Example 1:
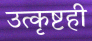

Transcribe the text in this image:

उत्कृष्टही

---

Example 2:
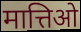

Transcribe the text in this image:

मात्तिओ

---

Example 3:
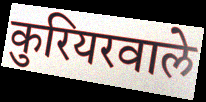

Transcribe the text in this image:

कुरियरवाले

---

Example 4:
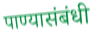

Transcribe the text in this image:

पाण्यासंबंधी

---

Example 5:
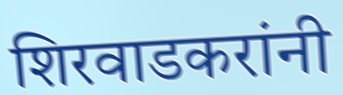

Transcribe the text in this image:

शिरवाडकरांनी